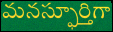
మనస్ఫూర్తిగా